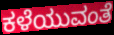
ಕಳೆಯುವಂತೆ